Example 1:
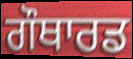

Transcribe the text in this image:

ਗੌਥਾਰਡ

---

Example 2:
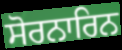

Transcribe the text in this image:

ਸੋਰਨਾਰਿਨ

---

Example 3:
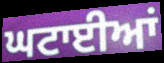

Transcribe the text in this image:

ਘਟਾਈਆਂ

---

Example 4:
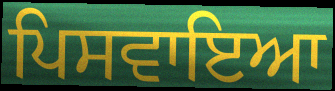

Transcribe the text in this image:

ਪਿਸਵਾਇਆ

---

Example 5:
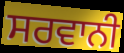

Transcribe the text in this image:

ਸਰਵਾਨੀ